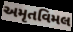
અમૃતવિમલ